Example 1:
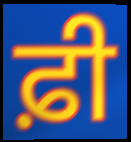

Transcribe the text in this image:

ਫ਼ੀ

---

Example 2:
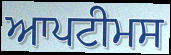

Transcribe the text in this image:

ਆਪਟੀਮਸ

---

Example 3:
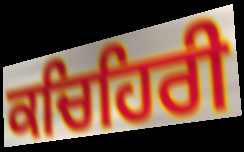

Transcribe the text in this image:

ਕਚਿਹਿਰੀ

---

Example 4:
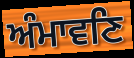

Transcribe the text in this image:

ਅੰਮਾਵਣਿ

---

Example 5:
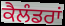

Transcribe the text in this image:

ਕੈਲੰਡਰਾਂ